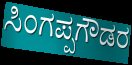
ಸಿಂಗಪ್ಪಗೌಡರ